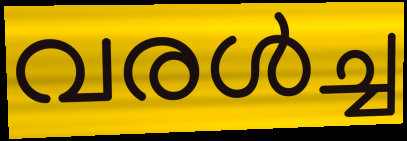
വരൾച്ച